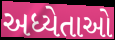
અધ્યેતાઓ